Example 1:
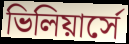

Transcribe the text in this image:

ভিলিয়ার্সে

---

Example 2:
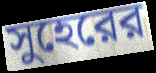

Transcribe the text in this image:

সুহেরের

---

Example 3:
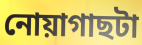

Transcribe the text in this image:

নোয়াগাছটা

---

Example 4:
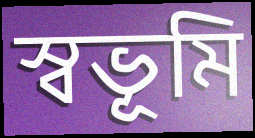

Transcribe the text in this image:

স্বভূমি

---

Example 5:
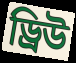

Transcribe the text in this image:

ড্রিউ